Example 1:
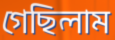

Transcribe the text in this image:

গেছিলাম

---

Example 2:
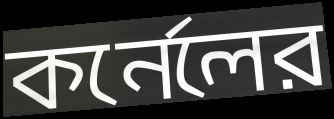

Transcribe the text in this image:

কর্নেলের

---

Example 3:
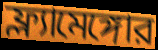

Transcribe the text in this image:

ফ্ল্যামেঙ্গোর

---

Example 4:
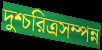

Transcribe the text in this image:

দুশ্চরিত্রসম্পন্ন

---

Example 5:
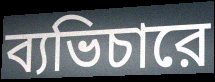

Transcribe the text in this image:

ব্যভিচারে